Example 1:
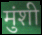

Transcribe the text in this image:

मुंशी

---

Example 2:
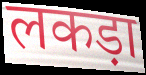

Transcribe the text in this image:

लकड़ा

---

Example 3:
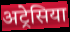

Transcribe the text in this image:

अट्रेसिया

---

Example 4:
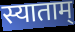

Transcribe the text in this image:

स्याताम्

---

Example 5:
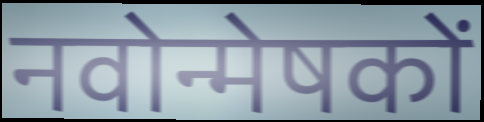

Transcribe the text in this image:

नवोन्‍मेषकों